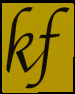
kf